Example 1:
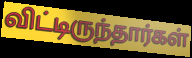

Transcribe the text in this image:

விட்டிருந்தார்கள்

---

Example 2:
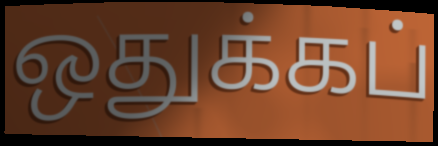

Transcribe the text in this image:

ஒதுக்கப்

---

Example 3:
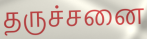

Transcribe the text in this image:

தருச்சனை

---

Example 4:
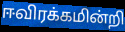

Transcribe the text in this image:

ஈவிரக்கமின்றி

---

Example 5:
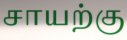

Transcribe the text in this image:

சாயற்கு